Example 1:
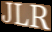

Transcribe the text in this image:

JLR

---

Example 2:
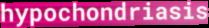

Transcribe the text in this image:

hypochondriasis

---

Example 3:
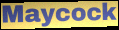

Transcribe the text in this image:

Maycock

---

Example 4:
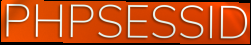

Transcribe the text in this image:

PHPSESSID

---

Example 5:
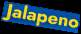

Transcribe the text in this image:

Jalapeno